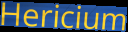
Hericium